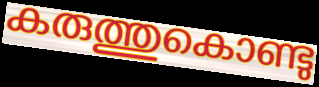
കരുത്തുകൊണ്ടു